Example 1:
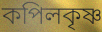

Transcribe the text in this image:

কপিলকৃষ্ণ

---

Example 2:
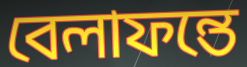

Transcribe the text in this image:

বেলাফন্তে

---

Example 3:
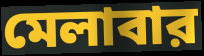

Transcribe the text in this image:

মেলাবার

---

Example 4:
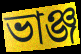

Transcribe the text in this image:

ভাঞ্জ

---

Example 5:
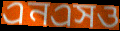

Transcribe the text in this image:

এনএসও